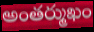
అంతర్ముఖం